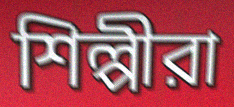
শিল্পীরা